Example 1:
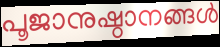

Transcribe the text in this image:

പൂജാനുഷ്ഠാനങ്ങൾ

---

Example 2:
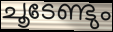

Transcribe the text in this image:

ചൂടേണ്ടും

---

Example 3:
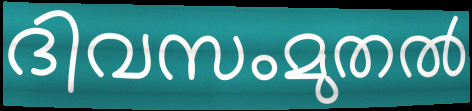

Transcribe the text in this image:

ദിവസംമുതൽ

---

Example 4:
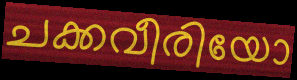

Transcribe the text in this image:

ചക്കവീരിയോ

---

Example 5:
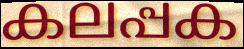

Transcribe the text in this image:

കലപ്പക